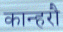
कान्हरौ